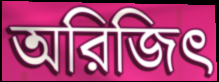
অরিজিৎ